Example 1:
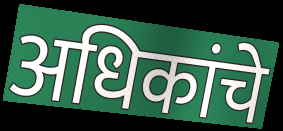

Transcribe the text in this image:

अधिकांचे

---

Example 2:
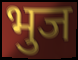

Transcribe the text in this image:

भुज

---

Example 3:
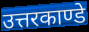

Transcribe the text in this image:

उत्तरकाण्डे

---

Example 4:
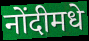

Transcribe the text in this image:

नोंदीमधे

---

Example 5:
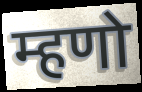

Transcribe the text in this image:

म्हणो